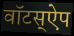
वॉटस्ऐप